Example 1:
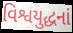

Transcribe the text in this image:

વિશ્વયુદ્ધનાં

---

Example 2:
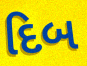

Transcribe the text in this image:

દિબ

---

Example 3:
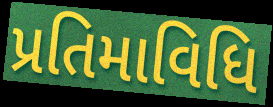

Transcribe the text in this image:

પ્રતિમાવિધિ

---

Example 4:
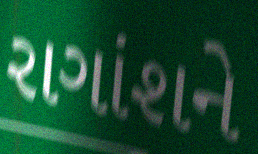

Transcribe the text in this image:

રાગાંશને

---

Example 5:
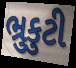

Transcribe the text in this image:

ભ્રુકુટી